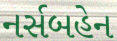
નર્સબહેન